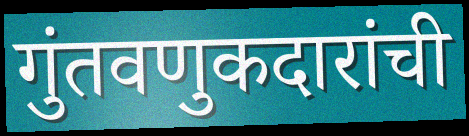
गुंतवणुकदारांची